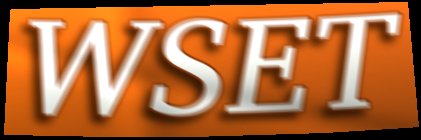
WSET